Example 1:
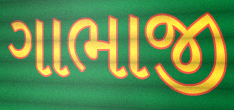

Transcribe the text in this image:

ગાભાજી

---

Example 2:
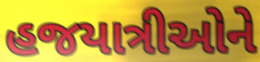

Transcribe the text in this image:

હજયાત્રીઓને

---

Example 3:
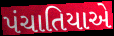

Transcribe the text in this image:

પંચાતિયાએ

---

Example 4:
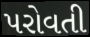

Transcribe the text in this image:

પરોવતી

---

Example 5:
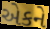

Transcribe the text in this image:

એકને